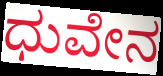
ಧುವೇನ